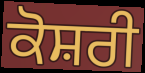
ਕੋਸ਼ਰੀ